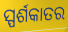
ସ୍ପର୍ଶକାତର